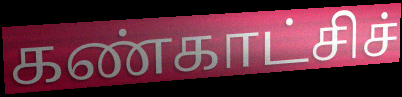
கண்காட்சிச்